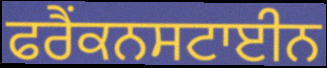
ਫਰੈਂਕਨਸਟਾਈਨ